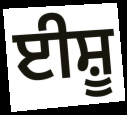
ਈਸ਼ੂ